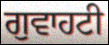
ਗੁਵਾਹਟੀ